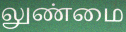
லுண்மை